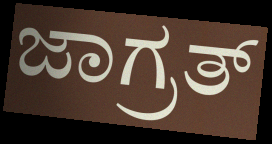
ಜಾಗ್ರತ್